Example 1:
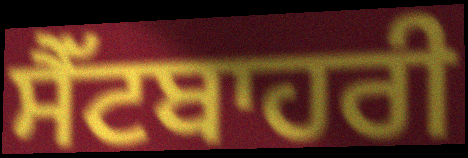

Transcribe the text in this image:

ਸੈੱਟਬਾਹਰੀ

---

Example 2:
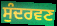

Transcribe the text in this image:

ਸੁੰਦਰਵਣ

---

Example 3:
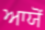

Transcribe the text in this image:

ਆਯੋਂ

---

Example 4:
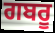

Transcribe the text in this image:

ਗਬਰੂ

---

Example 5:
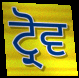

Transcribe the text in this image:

ਟ੍ਰੋਵ